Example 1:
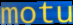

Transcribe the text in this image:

motu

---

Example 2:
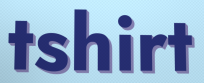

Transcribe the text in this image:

tshirt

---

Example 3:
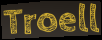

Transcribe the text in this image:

Troell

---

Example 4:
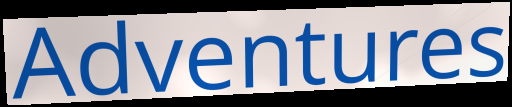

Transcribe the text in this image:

Adventures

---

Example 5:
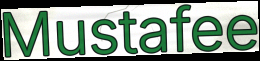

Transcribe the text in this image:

Mustafee